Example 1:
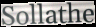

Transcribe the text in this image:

Sollathe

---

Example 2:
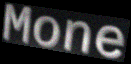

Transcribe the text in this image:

Mone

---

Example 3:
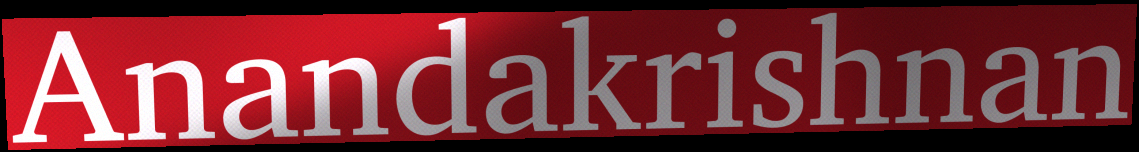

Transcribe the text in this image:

Anandakrishnan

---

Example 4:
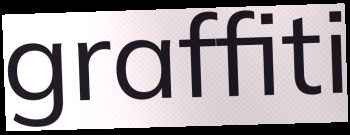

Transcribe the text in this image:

graffiti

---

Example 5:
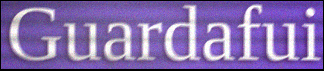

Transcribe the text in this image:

Guardafui